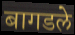
बागडले